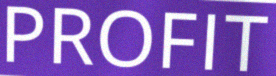
PROFIT